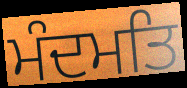
ਮੰਦਮਤਿ